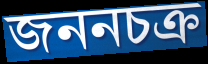
জননচক্র